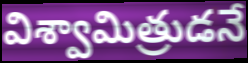
విశ్వామిత్రుడనే